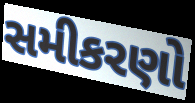
સમીકરણો